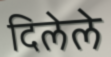
दिलेले